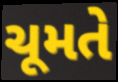
ચૂમતે